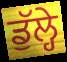
ਡੁੱਲ੍ਹੇ